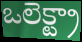
ఒలెక్ట్రా